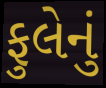
ફુલેનું